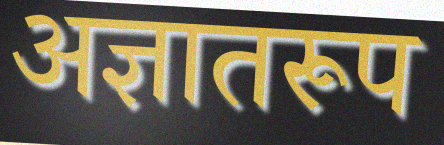
अज्ञातरूप